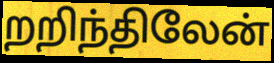
றறிந்திலேன்